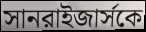
সানরাইজার্সকে